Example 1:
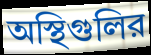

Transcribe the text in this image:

অস্থিগুলির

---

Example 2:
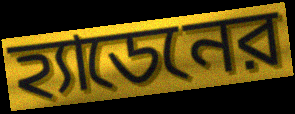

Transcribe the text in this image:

হ্যাডেনের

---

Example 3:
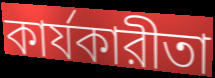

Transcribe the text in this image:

কার্যকারীতা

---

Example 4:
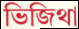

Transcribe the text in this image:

ভিজিথা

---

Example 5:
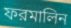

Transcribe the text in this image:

ফরমালিন